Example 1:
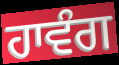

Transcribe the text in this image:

ਹਾਵੰਗ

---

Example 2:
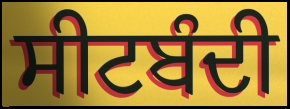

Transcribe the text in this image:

ਸੀਟਬੰਦੀ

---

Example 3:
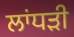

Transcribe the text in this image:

ਲਾਂਧੜੀ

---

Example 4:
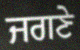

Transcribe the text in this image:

ਜਗਣੇ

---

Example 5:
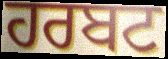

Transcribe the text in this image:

ਹਰਬਟ